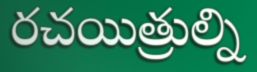
రచయిత్రుల్ని